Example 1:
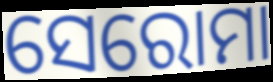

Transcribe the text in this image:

ସେରୋମା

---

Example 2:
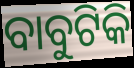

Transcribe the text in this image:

ବାବୁଟିକି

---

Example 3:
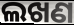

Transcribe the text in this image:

ଲଖଣ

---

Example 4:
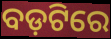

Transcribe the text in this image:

ବଡ଼ଟିରେ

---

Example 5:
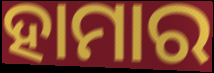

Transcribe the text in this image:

ହାମାର